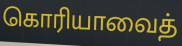
கொரியாவைத்